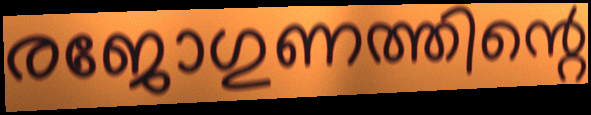
രജോഗുണത്തിന്റെ